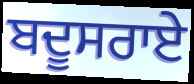
ਬਦੂਸਰਾਏ